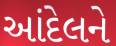
આંદેલને